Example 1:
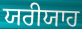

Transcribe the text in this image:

ਯਰੀਯਾਹ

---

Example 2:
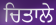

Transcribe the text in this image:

ਚਿਤਾਲੇ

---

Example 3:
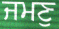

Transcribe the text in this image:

ਜਮਣੁ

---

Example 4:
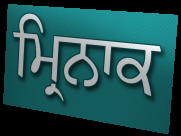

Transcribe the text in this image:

ਮ੍ਰਿਨਾਕ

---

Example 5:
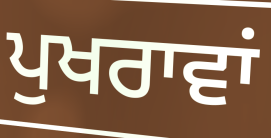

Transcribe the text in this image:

ਪੁਖਰਾਵਾਂ